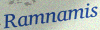
Ramnamis